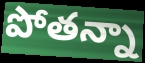
పోతన్నా